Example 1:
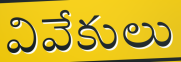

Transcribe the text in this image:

వివేకులు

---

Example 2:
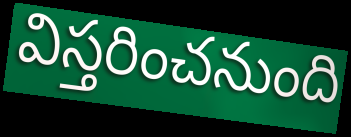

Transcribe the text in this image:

విస్తరించనుంది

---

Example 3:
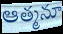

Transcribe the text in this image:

ఆత్మనూ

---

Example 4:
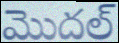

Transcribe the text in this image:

మొదల్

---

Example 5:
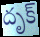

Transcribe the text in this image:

దృక్